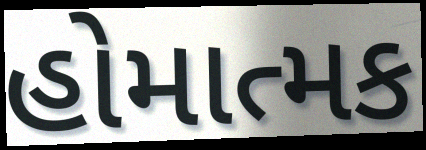
હોમાત્મક